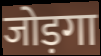
जोड़गा